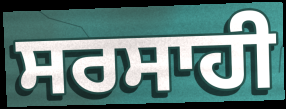
ਸਰਸਾਹੀ